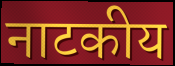
नाटकीय